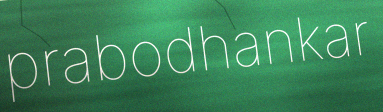
prabodhankar